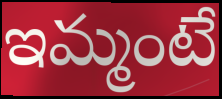
ఇమ్మంటే